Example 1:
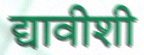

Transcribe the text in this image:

द्यावीशी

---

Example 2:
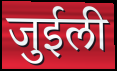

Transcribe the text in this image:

जुईली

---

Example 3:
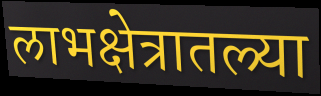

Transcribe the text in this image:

लाभक्षेत्रातल्या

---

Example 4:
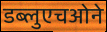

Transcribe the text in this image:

डब्लुएचओने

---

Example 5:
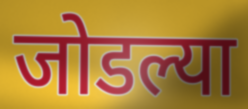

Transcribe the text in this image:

जोडल्या